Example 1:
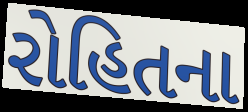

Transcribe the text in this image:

રોહિતના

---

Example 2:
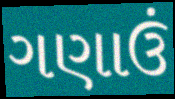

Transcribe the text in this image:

ગણાઉં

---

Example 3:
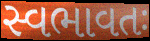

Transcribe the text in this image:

સ્વભાવતઃ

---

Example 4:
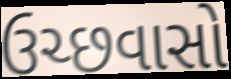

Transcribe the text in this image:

ઉચ્છવાસો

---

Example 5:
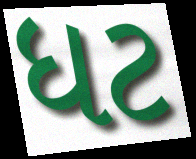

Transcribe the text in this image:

ધટ